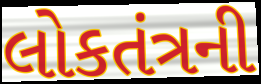
લોકતંત્રની